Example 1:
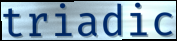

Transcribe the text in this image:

triadic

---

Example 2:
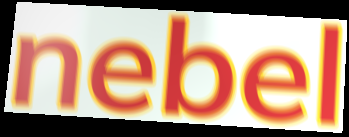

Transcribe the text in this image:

nebel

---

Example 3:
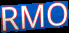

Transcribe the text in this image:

RMO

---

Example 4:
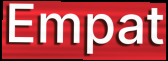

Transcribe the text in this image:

Empat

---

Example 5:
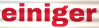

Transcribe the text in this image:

einiger